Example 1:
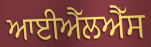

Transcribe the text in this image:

ਆਈਐੱਲਐੱਸ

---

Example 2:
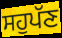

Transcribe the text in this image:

ਸਹੁਪੱਣ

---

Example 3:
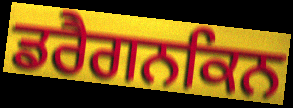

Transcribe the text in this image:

ਡਰੈਗਨਕਿਨ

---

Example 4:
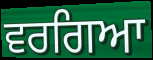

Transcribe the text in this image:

ਵਰਗਿਆ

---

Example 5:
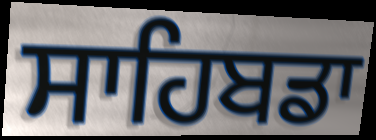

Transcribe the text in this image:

ਸਾਹਿਬਡਾ